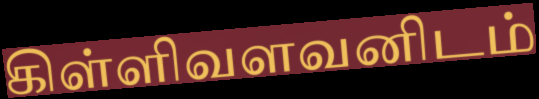
கிள்ளிவளவனிடம்